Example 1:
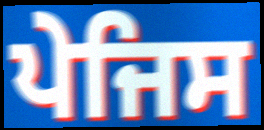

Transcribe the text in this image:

ਪੇਜਿਸ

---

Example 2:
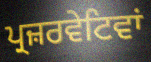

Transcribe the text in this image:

ਪ੍ਰਜ਼ਰਵੇਟਿਵਾਂ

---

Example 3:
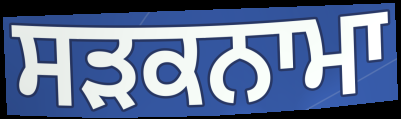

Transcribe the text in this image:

ਸਡ਼ਕਨਾਮਾ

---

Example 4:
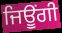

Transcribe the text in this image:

ਜਿਊਂਗੀ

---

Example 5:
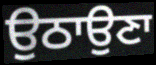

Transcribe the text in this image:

ਉਠਾਉਣਾ